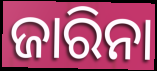
ଜାରିନା